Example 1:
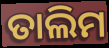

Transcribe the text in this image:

ତାଲିମ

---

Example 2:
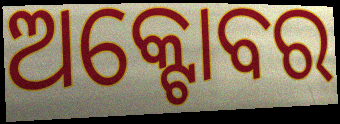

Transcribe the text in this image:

ଅକ୍ଟୋବର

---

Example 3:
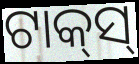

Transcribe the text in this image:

ଟାକ୍‍ସ୍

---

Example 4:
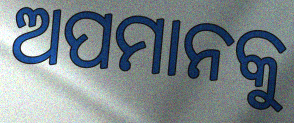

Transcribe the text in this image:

ଅପମାନକୁ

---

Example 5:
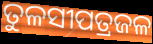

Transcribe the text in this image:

ତୁଳସୀପତ୍ରଜଳ